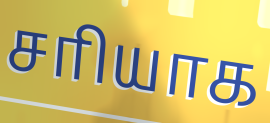
சரியாக